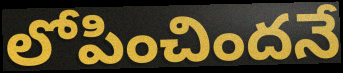
లోపించిందనే